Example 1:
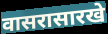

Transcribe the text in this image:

वासरासारखे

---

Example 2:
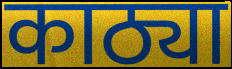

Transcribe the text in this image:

काठ्या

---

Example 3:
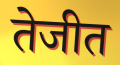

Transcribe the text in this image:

तेजीत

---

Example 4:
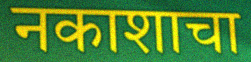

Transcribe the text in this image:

नकाशाचा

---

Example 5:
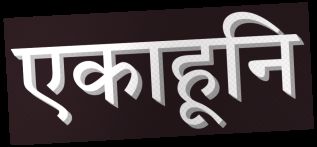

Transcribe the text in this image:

एकाहूनि